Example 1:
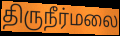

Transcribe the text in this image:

திருநீர்மலை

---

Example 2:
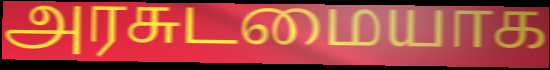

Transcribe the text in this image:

அரசுடமையாக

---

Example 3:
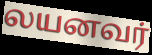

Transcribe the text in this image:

லயனவர்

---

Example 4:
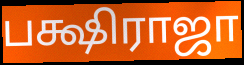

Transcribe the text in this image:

பக்ஷிராஜா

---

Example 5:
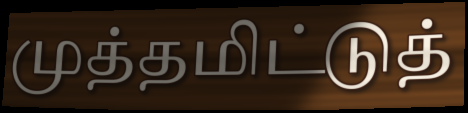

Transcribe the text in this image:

முத்தமிட்டுத்